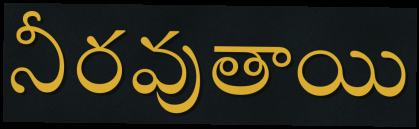
నీరవుతాయి